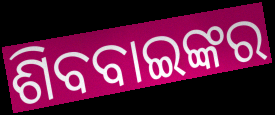
ଶିବବାଇଙ୍କର